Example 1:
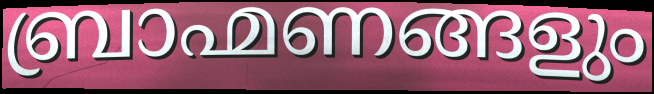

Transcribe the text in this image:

ബ്രാഹ്മണങ്ങളും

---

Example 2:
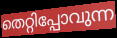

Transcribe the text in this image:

തെറ്റിപ്പോവുന്ന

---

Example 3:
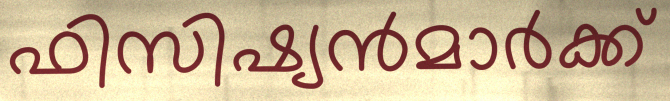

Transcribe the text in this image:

ഫിസിഷ്യൻമാർക്ക്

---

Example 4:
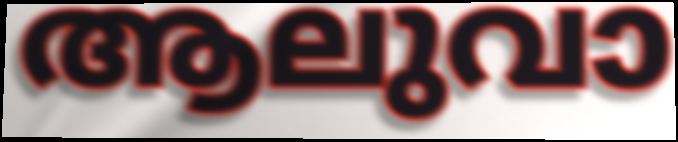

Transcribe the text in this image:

ആലുവാ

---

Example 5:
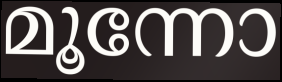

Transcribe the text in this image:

മൂന്നോ